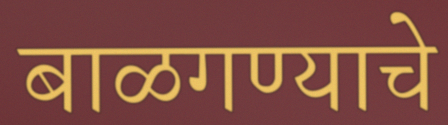
बाळगण्याचे